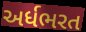
અર્ધભરત